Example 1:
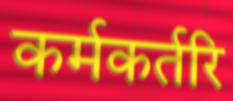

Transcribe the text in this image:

कर्मकर्तरि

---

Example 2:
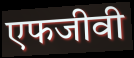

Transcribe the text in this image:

एफजीवी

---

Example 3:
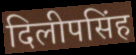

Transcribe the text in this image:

दिलीपसिंह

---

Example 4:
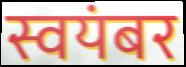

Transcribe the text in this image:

स्वयंबर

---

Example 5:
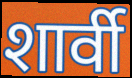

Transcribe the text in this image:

शार्वी